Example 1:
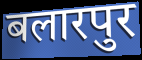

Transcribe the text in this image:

बलारपुर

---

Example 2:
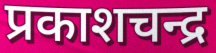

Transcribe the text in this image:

प्रकाशचन्द्र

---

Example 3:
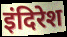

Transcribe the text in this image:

इंदिरेश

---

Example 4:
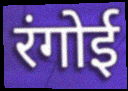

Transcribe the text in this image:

रंगोई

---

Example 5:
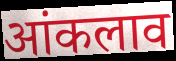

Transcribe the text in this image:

आंकलाव